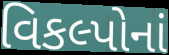
વિકલ્પોનાં